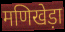
मणिखेड़ा